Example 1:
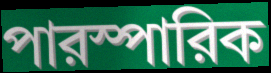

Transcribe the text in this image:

পারস্পারিক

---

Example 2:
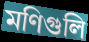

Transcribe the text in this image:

মণিগুলি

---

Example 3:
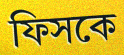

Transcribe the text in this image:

ফিসকে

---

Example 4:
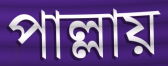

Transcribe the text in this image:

পাল্লায়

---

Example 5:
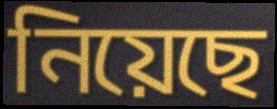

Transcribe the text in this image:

নিয়েছে